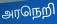
அரநெறி